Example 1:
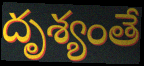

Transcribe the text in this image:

దృశ్యంతే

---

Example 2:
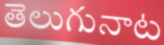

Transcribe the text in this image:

తెలుగునాట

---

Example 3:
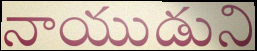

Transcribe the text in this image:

నాయుడుని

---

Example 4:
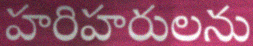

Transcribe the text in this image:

హరిహరులను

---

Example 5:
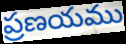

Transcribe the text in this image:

ప్రణయము